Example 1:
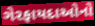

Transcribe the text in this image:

ગેરફાયદાઓનો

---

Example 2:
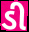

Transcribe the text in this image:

ડી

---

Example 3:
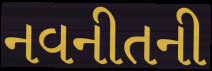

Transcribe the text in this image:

નવનીતની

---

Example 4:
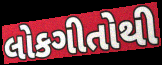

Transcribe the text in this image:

લોકગીતોથી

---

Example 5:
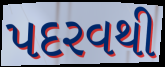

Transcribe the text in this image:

પદરવથી